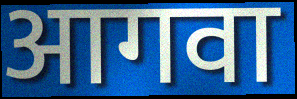
आगवा